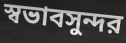
স্বভাবসুন্দর